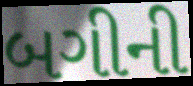
બગીની